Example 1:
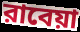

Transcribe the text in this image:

রাবেয়া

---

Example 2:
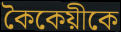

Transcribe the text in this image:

কৈকেয়ীকে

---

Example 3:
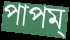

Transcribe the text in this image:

পাপম্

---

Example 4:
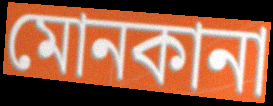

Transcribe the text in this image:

মোনকানা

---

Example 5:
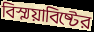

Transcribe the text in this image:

বিস্ময়াবিষ্টের